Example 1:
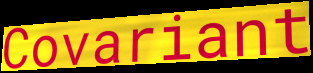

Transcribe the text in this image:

Covariant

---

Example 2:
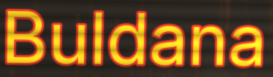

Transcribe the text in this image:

Buldana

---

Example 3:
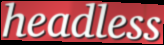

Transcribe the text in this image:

headless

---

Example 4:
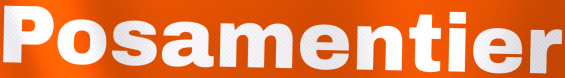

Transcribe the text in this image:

Posamentier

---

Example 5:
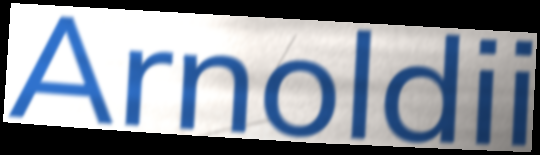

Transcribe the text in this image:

Arnoldii